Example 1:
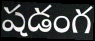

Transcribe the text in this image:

షడంగ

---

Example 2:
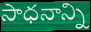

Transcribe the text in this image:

సాధనాన్ని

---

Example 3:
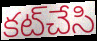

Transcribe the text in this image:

కట్‌చేసి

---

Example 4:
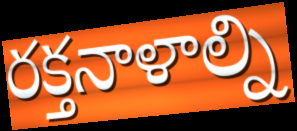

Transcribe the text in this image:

రక్తనాళాల్ని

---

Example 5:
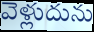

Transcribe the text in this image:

వెళ్లుదును